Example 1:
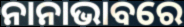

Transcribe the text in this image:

ନାନାଭାବରେ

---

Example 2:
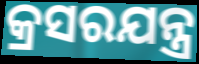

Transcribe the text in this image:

କ୍ରସରଯନ୍ତ୍ର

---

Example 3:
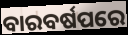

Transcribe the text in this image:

ବାରବର୍ଷପରେ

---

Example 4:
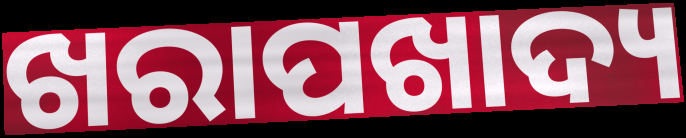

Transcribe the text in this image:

ଖରାପଖାଦ୍ୟ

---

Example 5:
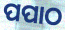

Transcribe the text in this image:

ପପାଠ